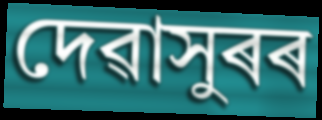
দেৱাসুৰৰ